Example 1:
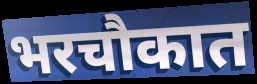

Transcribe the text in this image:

भरचौकात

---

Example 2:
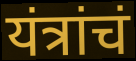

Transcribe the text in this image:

यंत्रांचं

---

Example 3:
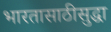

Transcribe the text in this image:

भारतासाठीसुद्धा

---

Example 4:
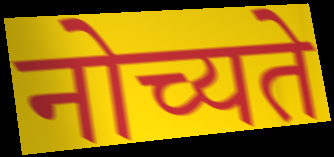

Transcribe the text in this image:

नोच्यते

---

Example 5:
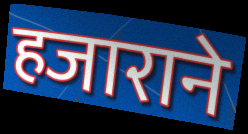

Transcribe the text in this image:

हजाराने